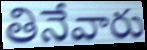
తినేవారు